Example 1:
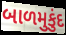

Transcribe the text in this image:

બાળમુકુંદ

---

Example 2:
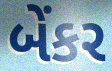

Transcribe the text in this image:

બેંકર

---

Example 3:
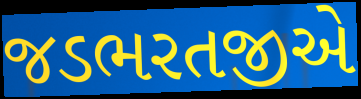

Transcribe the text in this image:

જડભરતજીએ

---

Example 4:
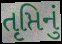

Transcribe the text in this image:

તૃપ્તિનું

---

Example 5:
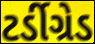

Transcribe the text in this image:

ટર્ડીગ્રેડ